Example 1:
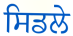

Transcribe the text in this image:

ਸਿਡਲੇ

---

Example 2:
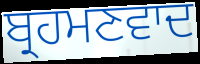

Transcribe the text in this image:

ਬ੍ਰਹਮਣਵਾਦ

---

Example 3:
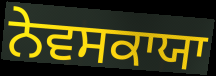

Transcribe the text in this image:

ਨੇਵਸਕਾਯਾ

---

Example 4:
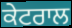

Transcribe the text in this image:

ਕੇਟਰਾਲ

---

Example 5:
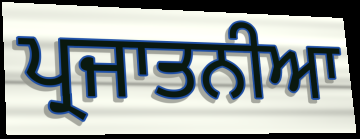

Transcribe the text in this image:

ਪ੍ਰਜਾਤਨੀਆ